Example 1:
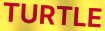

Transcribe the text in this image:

TURTLE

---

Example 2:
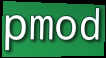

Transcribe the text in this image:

pmod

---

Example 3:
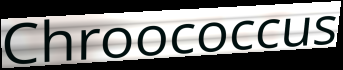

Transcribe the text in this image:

Chroococcus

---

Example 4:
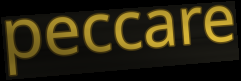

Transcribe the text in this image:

peccare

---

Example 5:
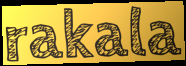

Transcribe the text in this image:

rakala